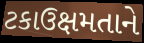
ટકાઉક્ષમતાને